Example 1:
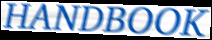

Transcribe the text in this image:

HANDBOOK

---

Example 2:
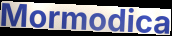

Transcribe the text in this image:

Mormodica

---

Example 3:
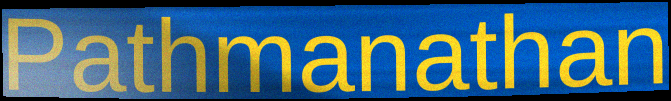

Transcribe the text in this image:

Pathmanathan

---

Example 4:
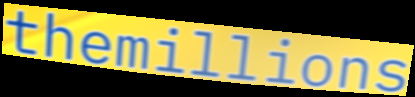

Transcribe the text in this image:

themillions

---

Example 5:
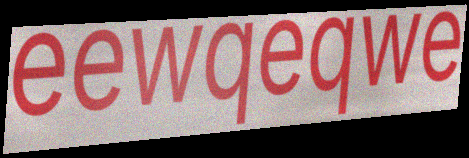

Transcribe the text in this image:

eewqeqwe